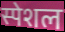
स्पेशल